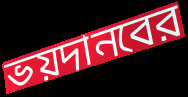
ভয়দানবের